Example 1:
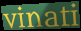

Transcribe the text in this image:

vinati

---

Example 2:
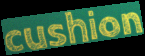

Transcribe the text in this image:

cushion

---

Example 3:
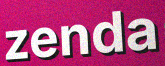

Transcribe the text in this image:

zenda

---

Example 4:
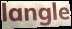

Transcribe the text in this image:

langle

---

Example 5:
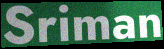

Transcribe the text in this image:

Sriman